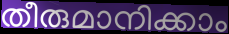
തീരുമാനിക്കാം